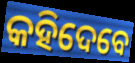
କହିଦେବେ